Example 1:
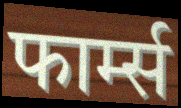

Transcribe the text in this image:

फार्म्स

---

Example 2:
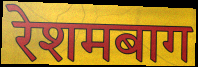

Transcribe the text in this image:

रेशमबाग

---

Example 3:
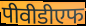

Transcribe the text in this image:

पीवीडीएफ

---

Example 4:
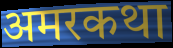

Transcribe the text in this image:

अमरकथा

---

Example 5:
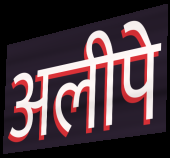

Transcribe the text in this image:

अलीपे